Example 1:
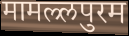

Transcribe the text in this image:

मामल्लपुरम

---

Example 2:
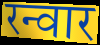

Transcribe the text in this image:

रन्वार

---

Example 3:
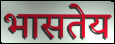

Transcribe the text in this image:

भासतेय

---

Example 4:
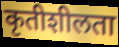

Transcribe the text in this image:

कृतीशीलता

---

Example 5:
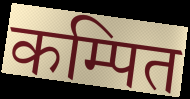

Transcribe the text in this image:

कम्पित